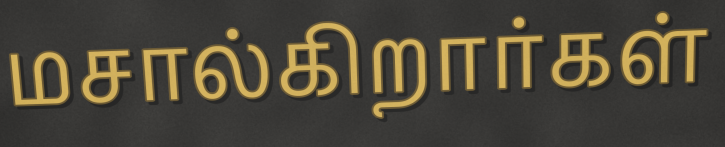
மசால்கிறார்கள்